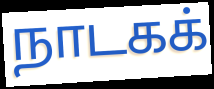
நாடகக்